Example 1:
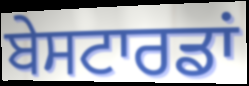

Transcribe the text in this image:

ਬੇਸਟਾਰਡਾਂ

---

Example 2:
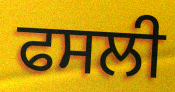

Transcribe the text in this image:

ਫਸਲੀ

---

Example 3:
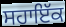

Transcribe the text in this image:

ਸਹਾਇੱਕ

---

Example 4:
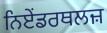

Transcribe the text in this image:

ਨਿਏਂਡਰਥਲਜ਼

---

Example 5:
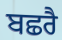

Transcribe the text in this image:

ਬਛਰੈ